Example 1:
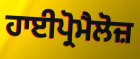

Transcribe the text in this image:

ਹਾਈਪ੍ਰੋਮੈਲੋਜ਼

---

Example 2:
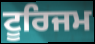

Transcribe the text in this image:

ਟੂਰਿਜਮ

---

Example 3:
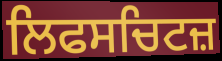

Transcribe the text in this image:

ਲਿਫਸਚਿਟਜ਼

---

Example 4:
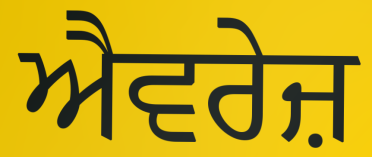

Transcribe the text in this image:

ਐਵਰੇਜ਼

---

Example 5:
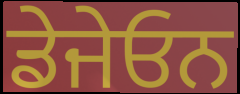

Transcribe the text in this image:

ਡੇਜੇਓਨ